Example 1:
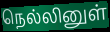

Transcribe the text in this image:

நெல்லினுள்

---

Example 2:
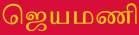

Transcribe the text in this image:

ஜெயமணி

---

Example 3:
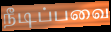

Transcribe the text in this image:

நீடிப்பவை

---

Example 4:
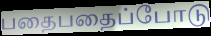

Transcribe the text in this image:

பதைபதைப்போடு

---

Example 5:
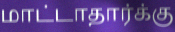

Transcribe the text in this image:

மாட்டாதார்க்கு